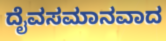
ದೈವಸಮಾನವಾದ